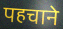
पहचाने